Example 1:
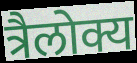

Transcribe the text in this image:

त्रैलोक्य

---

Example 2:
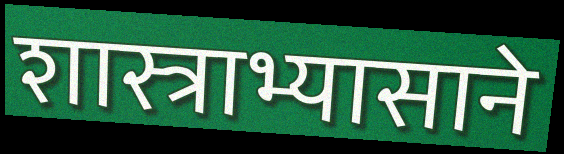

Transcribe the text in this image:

शास्त्राभ्यासाने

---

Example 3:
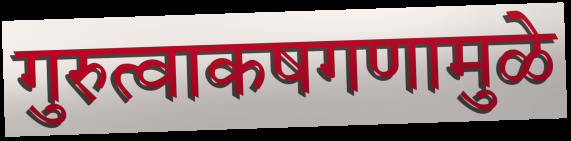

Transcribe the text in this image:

गुरुत्वाकषगणामुळे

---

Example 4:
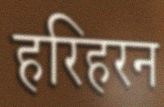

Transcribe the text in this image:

हरिहरन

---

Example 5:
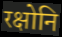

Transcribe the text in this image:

रक्षोनि